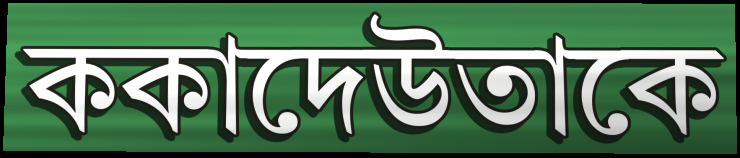
ককাদেউতাকে